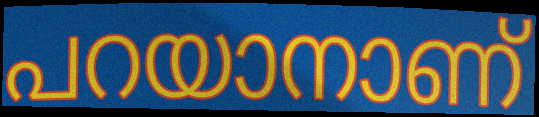
പറയാനാണ്